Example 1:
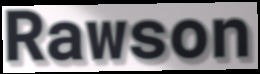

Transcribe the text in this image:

Rawson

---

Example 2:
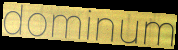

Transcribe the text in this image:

dominum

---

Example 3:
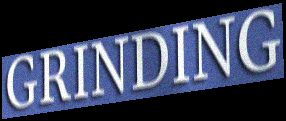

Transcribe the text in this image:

GRINDING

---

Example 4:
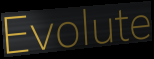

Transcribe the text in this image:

Evolute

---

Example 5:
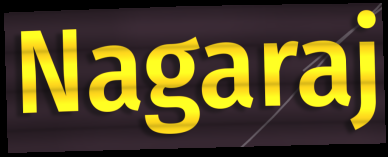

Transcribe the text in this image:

Nagaraj